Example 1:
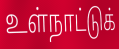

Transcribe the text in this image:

உள்நாட்டுக்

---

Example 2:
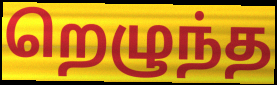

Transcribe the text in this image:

றெழுந்த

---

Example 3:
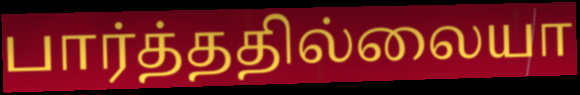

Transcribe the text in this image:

பார்த்ததில்லையா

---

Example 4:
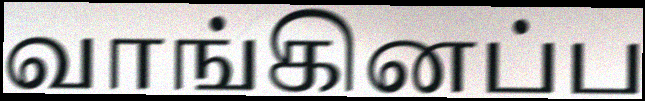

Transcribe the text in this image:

வாங்கினப்ப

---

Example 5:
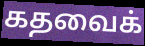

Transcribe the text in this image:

கதவைக்